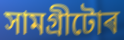
সামগ্ৰীটোৰ